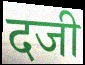
दजी